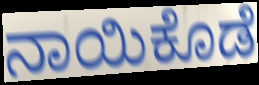
ನಾಯಿಕೊಡೆ